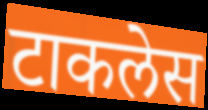
टाकलेस